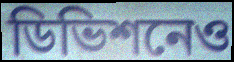
ডিভিশনেও